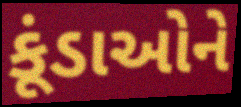
કૂંડાઓને